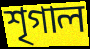
শৃগাল